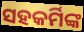
ସହକର୍ମିଙ୍କ